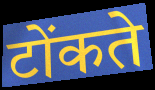
टोंकते